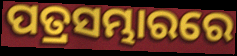
ପତ୍ରସମ୍ଭାରରେ